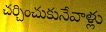
చర్చించుకునేవాళ్లు